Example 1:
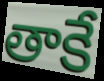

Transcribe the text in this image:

తాకే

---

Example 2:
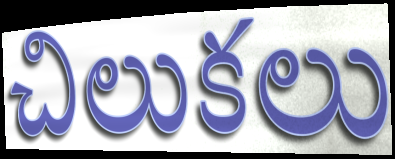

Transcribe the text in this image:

చిలుకలు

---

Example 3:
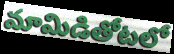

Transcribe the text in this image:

మామిడితోటలో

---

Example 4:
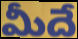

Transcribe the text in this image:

మీదే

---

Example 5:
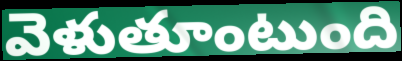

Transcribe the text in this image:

వెళుతూంటుంది